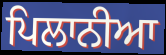
ਪਿਲਾਨੀਆ